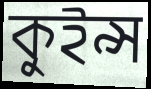
কুইন্স